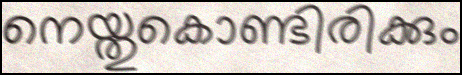
നെയ്തുകൊണ്ടിരിക്കും